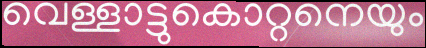
വെള്ളാട്ടുകൊറ്റനെയും